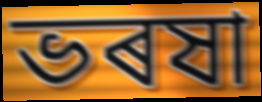
ভৰষা